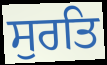
ਸੁਰਤਿ